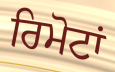
ਰਿਮੋਟਾਂ